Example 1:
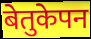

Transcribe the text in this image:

बेतुकेपन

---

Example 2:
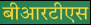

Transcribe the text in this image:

बीआरटीएस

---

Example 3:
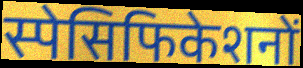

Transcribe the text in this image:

स्पेसिफिकेशनों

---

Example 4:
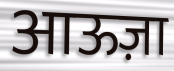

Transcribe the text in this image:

आऊज़ा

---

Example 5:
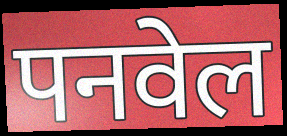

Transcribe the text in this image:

पनवेल